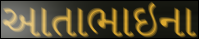
આતાભાઇના